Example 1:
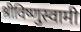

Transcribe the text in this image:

श्रीविष्णुस्वामी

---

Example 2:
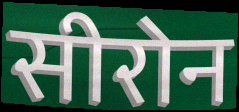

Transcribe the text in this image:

सीरोन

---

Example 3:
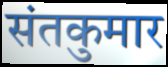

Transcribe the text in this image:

संतकुमार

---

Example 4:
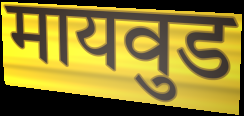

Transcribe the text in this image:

मायवुड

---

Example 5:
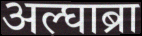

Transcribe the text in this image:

अल्घाब्रा